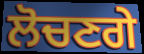
ਲੋਚਣਗੇ